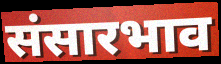
संसारभाव